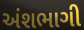
અંશભાગી